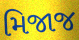
મિજાજ